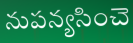
నుపన్యసించె